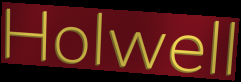
Holwell